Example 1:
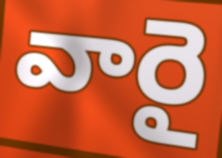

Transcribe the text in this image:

వారై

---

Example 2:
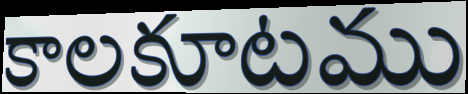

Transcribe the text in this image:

కాలకూటము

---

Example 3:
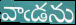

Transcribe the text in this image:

వాఁడను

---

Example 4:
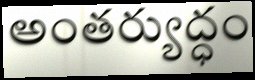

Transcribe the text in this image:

అంతర్యుద్ధం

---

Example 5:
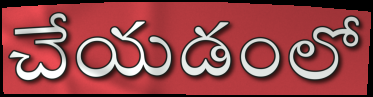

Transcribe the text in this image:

చేయడంలో